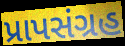
પ્રાપસંગ્રહ